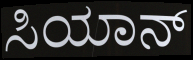
ಸಿಯಾನ್